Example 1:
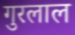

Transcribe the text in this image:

गुरलाल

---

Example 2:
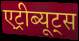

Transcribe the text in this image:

एट्रीब्यूट्स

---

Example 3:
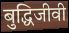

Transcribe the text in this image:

बुद्धिजीवी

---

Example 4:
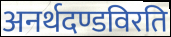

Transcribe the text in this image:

अनर्थदण्डविरति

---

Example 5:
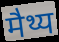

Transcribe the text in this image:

मैथ्य